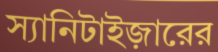
স্যানিটাইজ়ারের